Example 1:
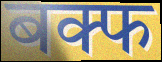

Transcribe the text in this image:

बक्फ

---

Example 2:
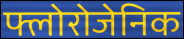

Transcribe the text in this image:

फ्लोरोजेनिक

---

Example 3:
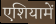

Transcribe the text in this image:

एशियामें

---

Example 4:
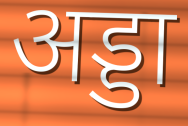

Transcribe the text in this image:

अड्डा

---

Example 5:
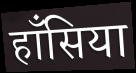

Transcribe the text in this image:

हाँसिया